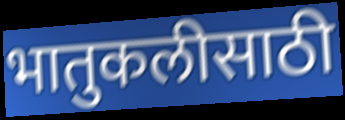
भातुकलीसाठी